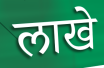
लाखे